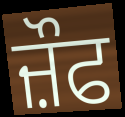
ਜ਼ੌਫ